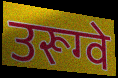
उरूग्वे